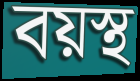
বয়স্থ